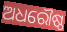
ଅଧରୌଷ୍ଠ